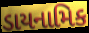
ડાયનામિક